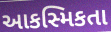
આકસ્મિકતા